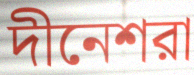
দীনেশরা